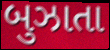
બુઝાતા